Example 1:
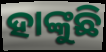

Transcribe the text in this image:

ହାଙ୍କୁଛି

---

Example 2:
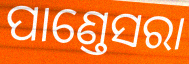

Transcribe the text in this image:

ପାଣ୍ଡେସରା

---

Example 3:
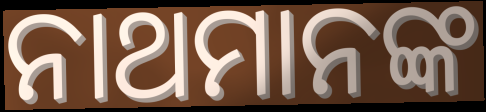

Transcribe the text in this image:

ନାଥମାନଙ୍କ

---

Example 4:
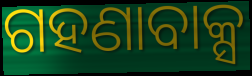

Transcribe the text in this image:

ଗହଣାବାକ୍ସ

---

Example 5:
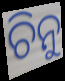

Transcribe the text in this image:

ଚିନୁ